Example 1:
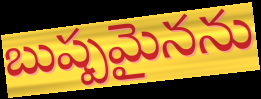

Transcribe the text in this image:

బుష్పమైనను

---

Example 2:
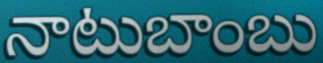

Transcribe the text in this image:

నాటుబాంబు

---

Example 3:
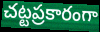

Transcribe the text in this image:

చట్టప్రకారంగా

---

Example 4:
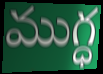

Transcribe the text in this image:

ముగ్ధ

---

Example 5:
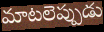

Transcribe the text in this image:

మాటలెప్పుడు